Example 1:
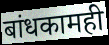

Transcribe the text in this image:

बांधकामही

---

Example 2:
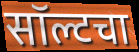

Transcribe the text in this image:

सॉल्टचा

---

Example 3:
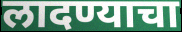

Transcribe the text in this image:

लादण्याचा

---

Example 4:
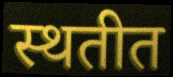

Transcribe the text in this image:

स्थतीत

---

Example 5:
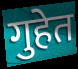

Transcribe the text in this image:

गुहेत